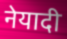
नेयादी